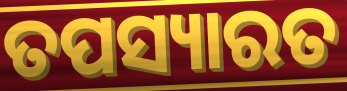
ତପସ୍ୟାରତ